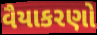
વૈયાકરણો